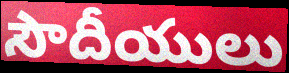
సౌదీయులు